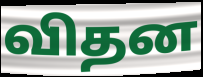
விதன